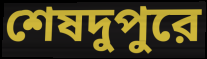
শেষদুপুরে